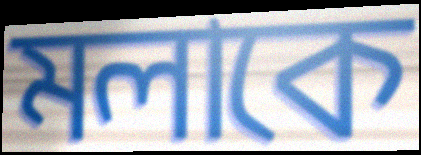
মলাকে